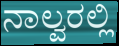
ನಾಲ್ವರಲ್ಲಿ